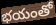
భయంతో